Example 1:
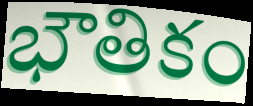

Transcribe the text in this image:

భౌతికం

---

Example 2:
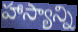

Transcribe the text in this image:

హాస్యాన్ని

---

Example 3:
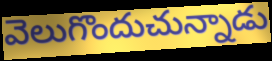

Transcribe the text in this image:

వెలుగొందుచున్నాడు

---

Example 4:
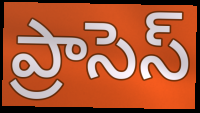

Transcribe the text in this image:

ప్రాసెస్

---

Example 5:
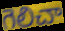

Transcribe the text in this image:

గెలిచా